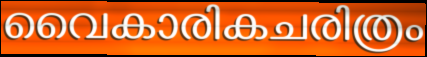
വൈകാരികചരിത്രം